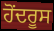
ਹੋਂਦਰੂਸ